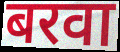
बरवा